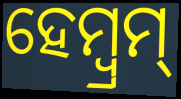
ହେମ୍ବ୍ରମ୍